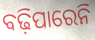
ବଢ଼ିପାରେନି